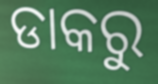
ଡାକରୁ